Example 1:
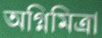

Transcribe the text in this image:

অগ্নিমিত্রা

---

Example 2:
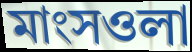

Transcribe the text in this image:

মাংসওলা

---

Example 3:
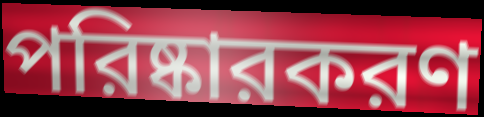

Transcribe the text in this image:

পরিষ্কারকরণ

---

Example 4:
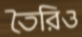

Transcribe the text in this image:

তৈরিও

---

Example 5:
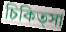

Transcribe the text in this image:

চিকিত্সা